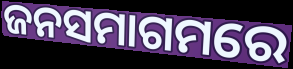
ଜନସମାଗମରେ